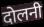
दोलनी